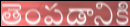
తెంపడానికి